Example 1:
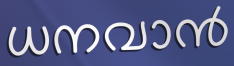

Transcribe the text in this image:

ധനവാൻ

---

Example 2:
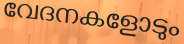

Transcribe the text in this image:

വേദനകളോടും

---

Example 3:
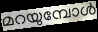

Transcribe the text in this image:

മറയുമ്പോൾ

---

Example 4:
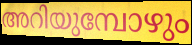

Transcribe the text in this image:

അറിയുമ്പോഴും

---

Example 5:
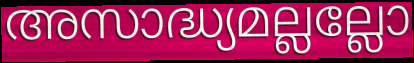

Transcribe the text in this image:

അസാദ്ധ്യമല്ലല്ലോ